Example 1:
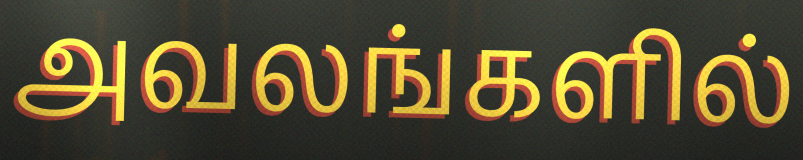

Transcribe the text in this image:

அவலங்களில்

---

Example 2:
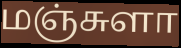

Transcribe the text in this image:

மஞ்சுளா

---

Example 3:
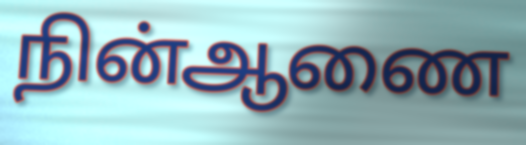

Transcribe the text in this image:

நின்ஆணை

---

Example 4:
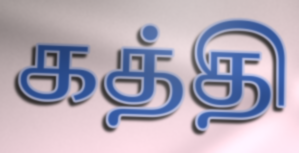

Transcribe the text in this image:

கத்தி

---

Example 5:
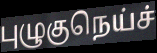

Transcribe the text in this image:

புழுகுநெய்ச்